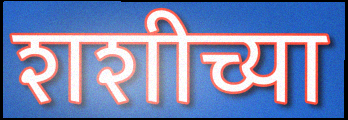
शशीच्या